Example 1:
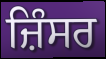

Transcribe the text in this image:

ਜ਼ਿੰਸਰ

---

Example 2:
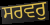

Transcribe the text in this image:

ਸਰਵਰੁ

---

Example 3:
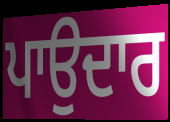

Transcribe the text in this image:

ਪਾਉਦਾਰ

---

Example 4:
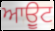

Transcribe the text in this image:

ਆਉੂਟ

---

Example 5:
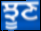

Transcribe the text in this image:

ਝੂਣ